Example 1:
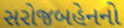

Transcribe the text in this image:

સરોજબહેનનો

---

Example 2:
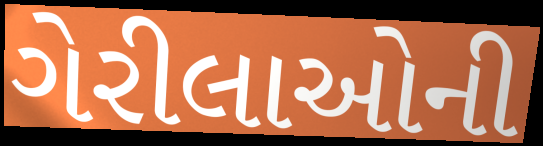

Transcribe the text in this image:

ગેરીલાઓની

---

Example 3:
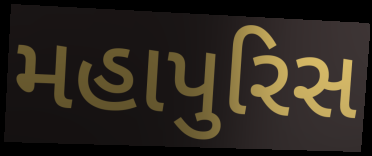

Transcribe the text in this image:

મહાપુરિસ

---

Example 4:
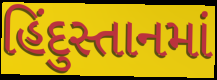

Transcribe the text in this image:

હિંદુસ્તાનમાં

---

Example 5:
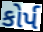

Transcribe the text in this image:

કોર્પ